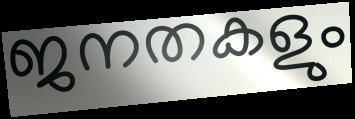
ജനതകളും